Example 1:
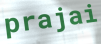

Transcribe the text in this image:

prajai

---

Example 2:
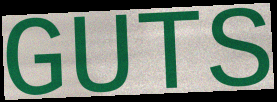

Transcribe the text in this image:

GUTS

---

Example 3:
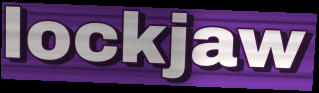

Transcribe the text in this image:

lockjaw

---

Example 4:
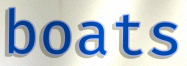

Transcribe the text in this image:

boats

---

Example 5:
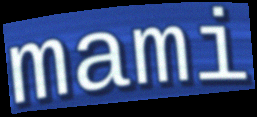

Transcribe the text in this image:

mami